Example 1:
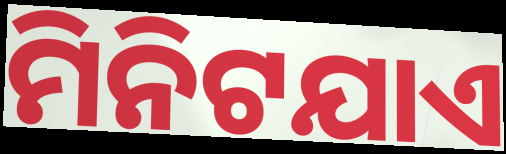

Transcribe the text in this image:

ମିନିଟଯାଏ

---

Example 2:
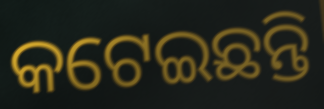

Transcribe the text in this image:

କଟେଇଛନ୍ତି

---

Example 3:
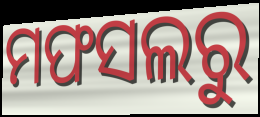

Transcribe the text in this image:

ମଫସଲରୁ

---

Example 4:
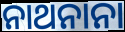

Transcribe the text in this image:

ନାଥନାନା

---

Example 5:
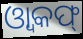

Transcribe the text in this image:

ଓ୍ଵାକଫ୍